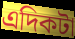
এদিকটা